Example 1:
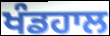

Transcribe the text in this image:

ਖੰਡਹਾਲ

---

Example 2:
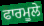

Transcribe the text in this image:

ਫਾਰਮੂਲੇ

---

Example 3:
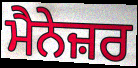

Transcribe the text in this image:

ਮੈਨੇਜ਼ਰ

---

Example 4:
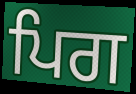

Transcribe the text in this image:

ਪਿਗ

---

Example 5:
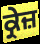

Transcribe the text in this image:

ਕ੍ਰੇਜ਼